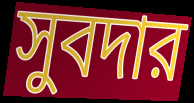
সুবদার